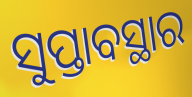
ସୁପ୍ତାବସ୍ଥାର